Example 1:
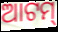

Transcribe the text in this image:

ଆଟମ୍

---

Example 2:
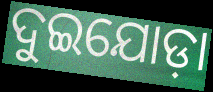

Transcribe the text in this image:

ଦୁଇଯୋଡ଼ା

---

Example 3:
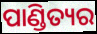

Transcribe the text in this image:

ପାଣ୍ଡିତ୍ୟର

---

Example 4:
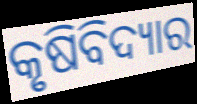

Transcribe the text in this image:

କୃଷିବିଦ୍ୟାର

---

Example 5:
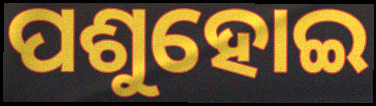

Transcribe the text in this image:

ପଶୁହୋଇ